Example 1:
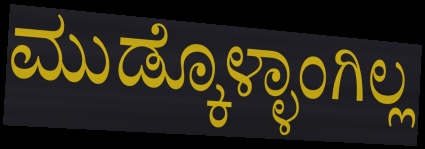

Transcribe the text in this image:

ಮುಡ್ಕೊಳ್ಳಾಂಗಿಲ್ಲ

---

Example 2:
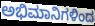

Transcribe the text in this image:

ಅಭಿಮಾನಿಗಳಿಂದ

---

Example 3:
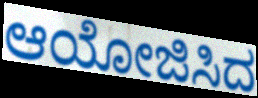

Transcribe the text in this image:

ಆಯೋಜಿಸಿದ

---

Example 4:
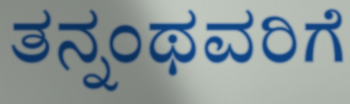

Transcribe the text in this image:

ತನ್ನಂಥವರಿಗೆ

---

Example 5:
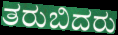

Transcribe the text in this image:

ತರುಬಿದರು